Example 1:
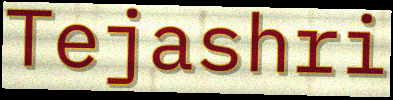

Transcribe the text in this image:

Tejashri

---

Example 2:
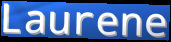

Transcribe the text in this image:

Laurene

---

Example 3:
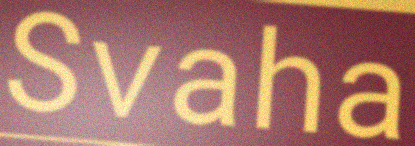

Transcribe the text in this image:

Svaha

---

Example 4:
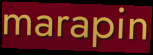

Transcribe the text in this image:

marapin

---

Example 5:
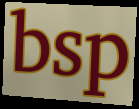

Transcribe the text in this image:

bsp